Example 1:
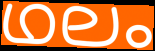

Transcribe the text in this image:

ഥലം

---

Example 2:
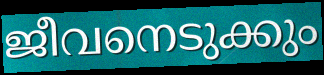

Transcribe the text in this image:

ജീവനെടുക്കും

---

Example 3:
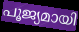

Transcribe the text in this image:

പൂജ്യമായി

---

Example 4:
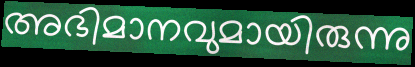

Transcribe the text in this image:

അഭിമാനവുമായിരുന്നു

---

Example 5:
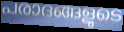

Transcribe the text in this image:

പരാദങ്ങളുടെ